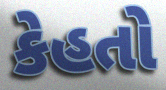
કેહતો